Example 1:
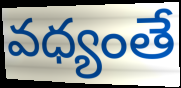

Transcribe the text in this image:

వధ్యంతే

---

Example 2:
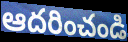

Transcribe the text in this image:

ఆదరించండి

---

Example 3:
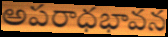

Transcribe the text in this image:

అపరాధభావన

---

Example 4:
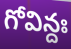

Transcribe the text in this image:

గోవిన్దః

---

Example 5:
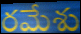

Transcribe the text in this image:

రమేశు